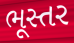
ભૂસ્તર